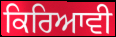
ਕਿਰਿਆਵੀ